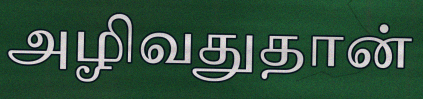
அழிவதுதான்